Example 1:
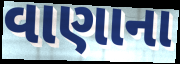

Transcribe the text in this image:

વાણાના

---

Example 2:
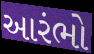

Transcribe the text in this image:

આરંભો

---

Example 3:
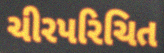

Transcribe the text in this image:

ચીરપરિચિત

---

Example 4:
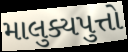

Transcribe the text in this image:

માલુક્યપુત્તો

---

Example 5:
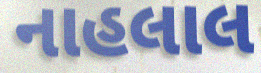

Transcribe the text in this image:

નાહલાલ